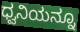
ಧ್ವನಿಯನ್ನೂ